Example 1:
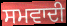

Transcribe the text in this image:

ਸਮਵਾਦੀ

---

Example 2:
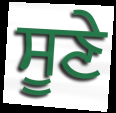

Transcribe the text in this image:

ਸੂਣੇ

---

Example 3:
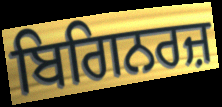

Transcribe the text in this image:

ਬਿਗਿਨਰਜ਼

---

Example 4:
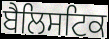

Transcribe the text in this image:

ਬੈਲਿਸਟਿਕ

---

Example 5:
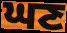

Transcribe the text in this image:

ਘਣ